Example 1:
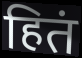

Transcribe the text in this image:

हितं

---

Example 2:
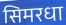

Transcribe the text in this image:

सिमरधा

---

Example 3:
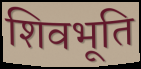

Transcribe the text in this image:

शिवभूति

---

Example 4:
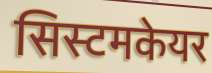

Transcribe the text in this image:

सिस्टमकेयर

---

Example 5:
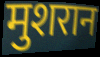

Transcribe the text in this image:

मुशरान